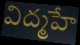
విద్మహే